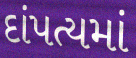
દાંપત્યમાં